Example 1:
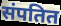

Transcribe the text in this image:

संपतित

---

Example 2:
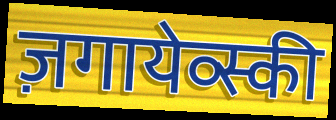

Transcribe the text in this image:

ज़गायेव्स्की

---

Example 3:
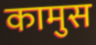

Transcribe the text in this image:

कामुस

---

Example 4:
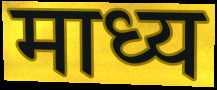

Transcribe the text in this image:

माध्‍य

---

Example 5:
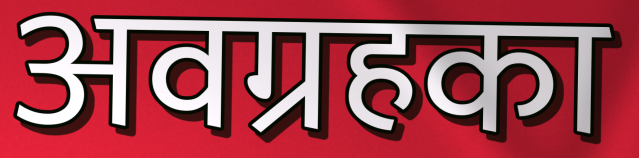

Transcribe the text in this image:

अवग्रहका